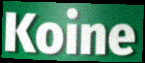
Koine